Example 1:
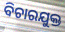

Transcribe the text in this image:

ବିଚାରଯୁକ୍ତ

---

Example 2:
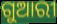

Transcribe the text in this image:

ଗୁଆରୀ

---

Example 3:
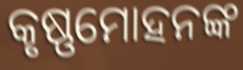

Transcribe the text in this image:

କୃଷ୍ଣମୋହନଙ୍କ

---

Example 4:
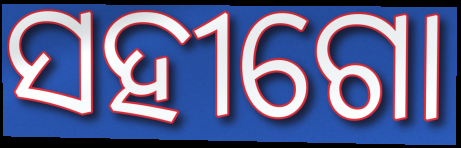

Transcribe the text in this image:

ସହୀଗୋ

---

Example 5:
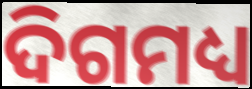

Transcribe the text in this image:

ଦିଗମଧ୍ୟ